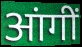
आंगीं